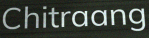
Chitraang